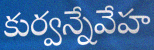
కుర్వన్నేవేహ